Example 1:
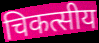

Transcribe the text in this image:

चिकत्सीय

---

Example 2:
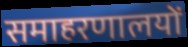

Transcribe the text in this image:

समाहरणालयों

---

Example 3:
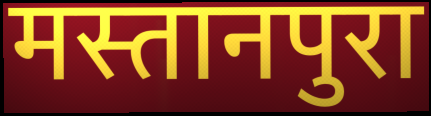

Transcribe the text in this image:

मस्तानपुरा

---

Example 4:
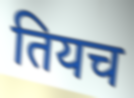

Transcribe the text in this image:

तियच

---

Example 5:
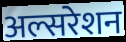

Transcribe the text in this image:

अल्सरेशन